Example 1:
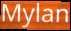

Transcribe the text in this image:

Mylan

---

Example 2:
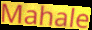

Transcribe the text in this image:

Mahale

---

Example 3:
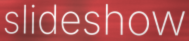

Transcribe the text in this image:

slideshow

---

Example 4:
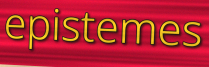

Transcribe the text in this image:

epistemes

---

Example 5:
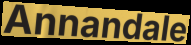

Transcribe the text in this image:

Annandale